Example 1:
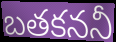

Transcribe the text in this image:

బతకననీ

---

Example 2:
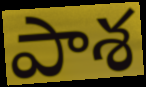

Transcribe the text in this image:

పాశ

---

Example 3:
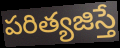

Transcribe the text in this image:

పరిత్యజిస్తే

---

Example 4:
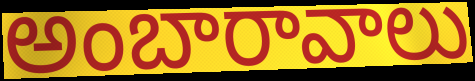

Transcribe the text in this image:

అంబారావాలు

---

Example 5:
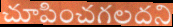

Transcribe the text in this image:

చూపించగలదని